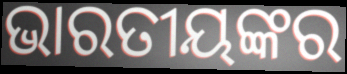
ଭାରତୀୟଙ୍କର